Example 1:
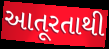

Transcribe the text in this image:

આતૂરતાથી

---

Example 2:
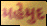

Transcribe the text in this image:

મહેમુદ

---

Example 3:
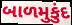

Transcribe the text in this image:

બાળમુકુંદ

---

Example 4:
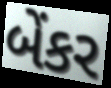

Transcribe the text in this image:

બેંકર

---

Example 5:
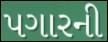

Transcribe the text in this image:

પગારની